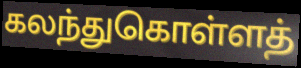
கலந்துகொள்ளத்